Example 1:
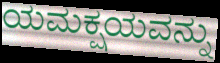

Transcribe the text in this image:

ಯಮಕ್ಷಯವನ್ನು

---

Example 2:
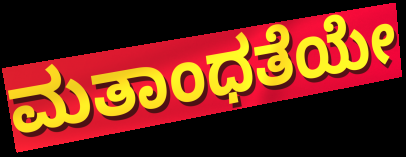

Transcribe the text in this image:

ಮತಾಂಧತೆಯೇ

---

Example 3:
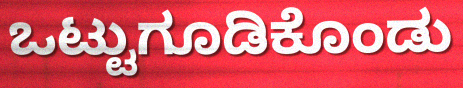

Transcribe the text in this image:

ಒಟ್ಟುಗೂಡಿಕೊಂಡು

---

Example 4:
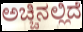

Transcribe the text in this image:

ಅಚ್ಚಿನಲ್ಲಿದೆ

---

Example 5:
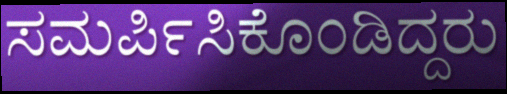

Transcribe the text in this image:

ಸಮರ್ಪಿಸಿಕೊಂಡಿದ್ದರು